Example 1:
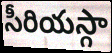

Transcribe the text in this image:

సీరియస్గా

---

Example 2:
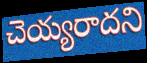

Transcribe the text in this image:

చెయ్యరాదని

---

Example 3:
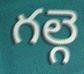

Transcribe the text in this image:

గల్గె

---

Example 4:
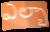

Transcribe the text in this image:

ఎల్బా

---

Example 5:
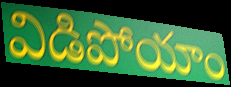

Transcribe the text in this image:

విడిపోయాం